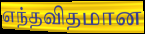
எந்தவிதமான